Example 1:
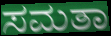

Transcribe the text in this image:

ಸಮತಾ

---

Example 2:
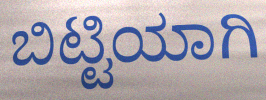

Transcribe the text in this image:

ಬಿಟ್ಟಿಯಾಗಿ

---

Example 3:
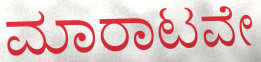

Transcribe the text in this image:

ಮಾರಾಟವೇ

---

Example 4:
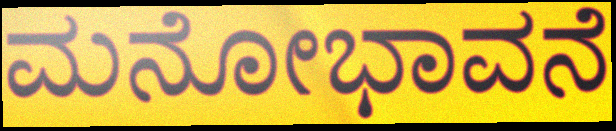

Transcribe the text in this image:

ಮನೋಭಾವನೆ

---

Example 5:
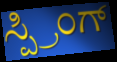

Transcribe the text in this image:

ಸ್ಪ್ರಿಂಗ್